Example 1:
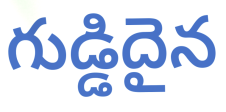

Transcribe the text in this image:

గుడ్డిదైన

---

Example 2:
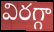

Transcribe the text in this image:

విరగ్గా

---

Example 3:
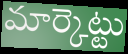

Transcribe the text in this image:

మార్కెట్టు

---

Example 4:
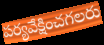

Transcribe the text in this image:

పర్యవేక్షించగలరు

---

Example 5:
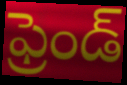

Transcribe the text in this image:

ఫ్రెండ్